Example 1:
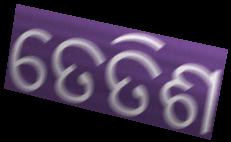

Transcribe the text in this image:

ତେତିଶ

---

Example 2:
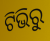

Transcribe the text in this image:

ଟିଭିରୁ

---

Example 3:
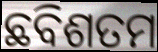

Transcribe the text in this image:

ଛବିଶତମ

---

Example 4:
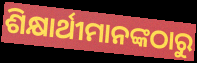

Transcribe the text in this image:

ଶିକ୍ଷାର୍ଥୀମାନଙ୍କଠାରୁ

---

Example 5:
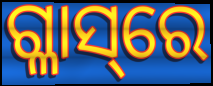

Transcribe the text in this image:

ଗ୍ଳାସ୍‌ରେ